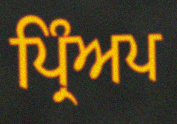
ਪ੍ਰਿੰਅਪ